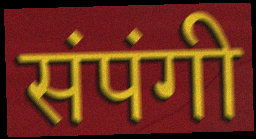
संपंगी